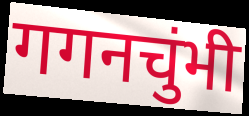
गगनचुंभी